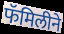
फॅमिलीने